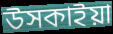
উসকাইয়া